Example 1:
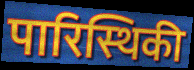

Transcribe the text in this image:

पारिस्थिकी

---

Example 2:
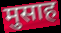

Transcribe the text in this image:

मुसाह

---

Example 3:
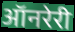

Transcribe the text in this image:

ऑनरेरी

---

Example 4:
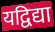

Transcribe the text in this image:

यद्विद्या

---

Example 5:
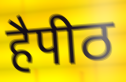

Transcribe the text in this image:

हैपीठ